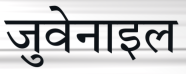
जुवेनाइल